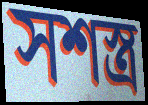
সশস্ত্র